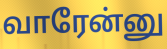
வாரேன்னு